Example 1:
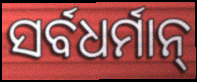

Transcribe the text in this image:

ସର୍ବଧର୍ମାନ୍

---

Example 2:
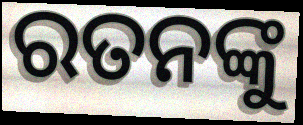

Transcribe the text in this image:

ରତନଙ୍କୁ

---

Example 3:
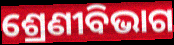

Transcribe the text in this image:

ଶ୍ରେଣୀବିଭାଗ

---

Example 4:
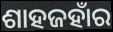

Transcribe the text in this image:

ଶାହଜହାଁର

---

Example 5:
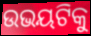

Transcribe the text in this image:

ଉଭୟଟିକୁ